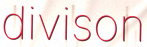
divison